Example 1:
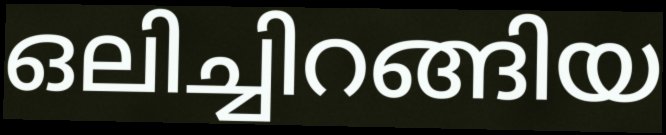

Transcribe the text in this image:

ഒലിച്ചിറങ്ങിയ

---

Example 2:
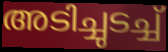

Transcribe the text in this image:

അടിച്ചുടച്ച്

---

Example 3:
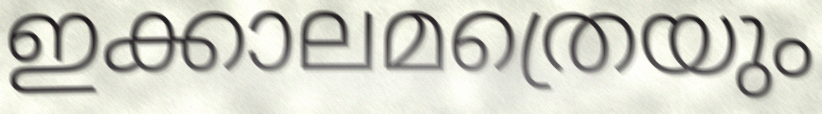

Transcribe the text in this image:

ഇക്കാലമത്രെയും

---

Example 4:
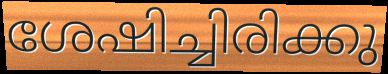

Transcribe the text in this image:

ശേഷിച്ചിരിക്കു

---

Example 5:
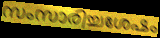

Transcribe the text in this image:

സംസാരിച്ചശേഷം